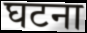
घटना